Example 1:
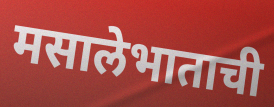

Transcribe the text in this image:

मसालेभाताची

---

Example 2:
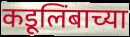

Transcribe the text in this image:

कडूलिंबाच्या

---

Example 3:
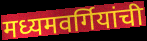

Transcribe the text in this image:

मध्यमवर्गियांची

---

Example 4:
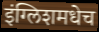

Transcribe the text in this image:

इंग्लिशमधेच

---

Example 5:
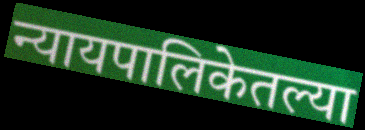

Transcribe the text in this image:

न्यायपालिकेतल्या